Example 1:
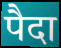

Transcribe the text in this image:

पैदा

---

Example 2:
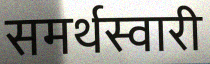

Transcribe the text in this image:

समर्थस्वारी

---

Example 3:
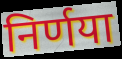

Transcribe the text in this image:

निर्णया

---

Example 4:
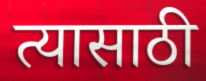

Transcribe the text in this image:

त्यासाठी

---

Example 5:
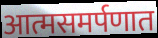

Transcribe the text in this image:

आत्मसमर्पणात